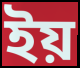
ইয়